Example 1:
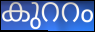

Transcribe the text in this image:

കുററം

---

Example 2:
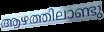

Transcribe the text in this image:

ആഴത്തിലാണ്ടു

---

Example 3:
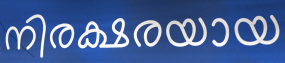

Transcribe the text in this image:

നിരക്ഷരയായ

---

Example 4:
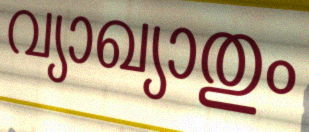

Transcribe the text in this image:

വ്യാഖ്യാതും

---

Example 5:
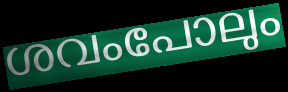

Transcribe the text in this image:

ശവംപോലും